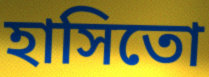
হাসিতো